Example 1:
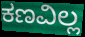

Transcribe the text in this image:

ಕಣವಿಲ್ಲ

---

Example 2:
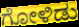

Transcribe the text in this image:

ಗೋಳಿಡು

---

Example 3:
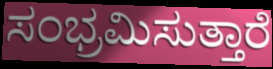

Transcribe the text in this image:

ಸಂಭ್ರಮಿಸುತ್ತಾರೆ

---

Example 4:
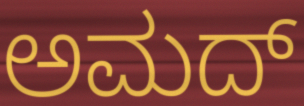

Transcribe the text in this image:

ಅಮದ್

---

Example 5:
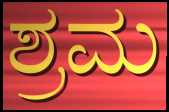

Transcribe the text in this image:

ಶ್ರಮ